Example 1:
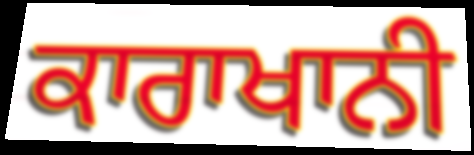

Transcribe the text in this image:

ਕਾਰਾਖਾਨੀ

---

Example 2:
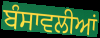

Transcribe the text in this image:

ਬੰਸਾਵਲੀਆਂ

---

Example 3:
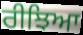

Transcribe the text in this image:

ਰੀਝਿਆ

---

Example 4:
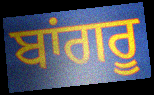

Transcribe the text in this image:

ਬਾਂਗਰੂ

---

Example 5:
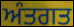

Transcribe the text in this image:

ਅੰਤਗਤ